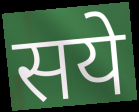
सये